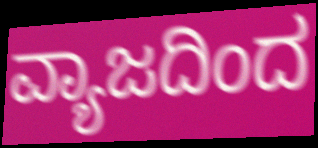
ವ್ಯಾಜದಿಂದ